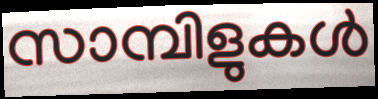
സാമ്പിളുകൾ